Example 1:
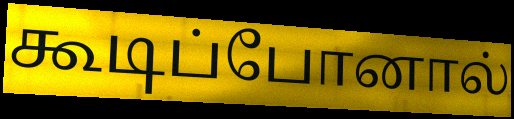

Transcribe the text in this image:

கூடிப்போனால்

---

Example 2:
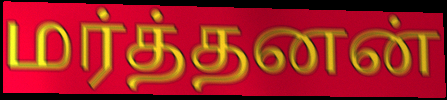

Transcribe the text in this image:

மர்த்தனன்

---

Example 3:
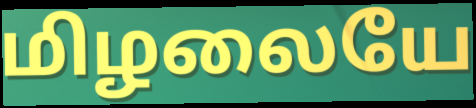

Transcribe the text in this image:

மிழலையே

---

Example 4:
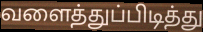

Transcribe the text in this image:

வளைத்துப்பிடித்து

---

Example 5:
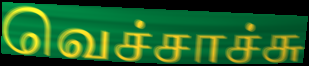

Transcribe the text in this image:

வெச்சாச்சு